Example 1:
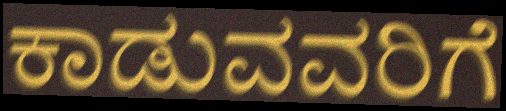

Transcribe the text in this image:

ಕಾಡುವವರಿಗೆ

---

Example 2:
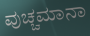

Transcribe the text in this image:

ವುಚ್ಚಮಾನಾ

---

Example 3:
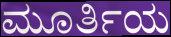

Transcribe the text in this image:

ಮೂರ್ತಿಯ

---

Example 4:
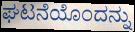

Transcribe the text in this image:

ಘಟನೆಯೊಂದನ್ನು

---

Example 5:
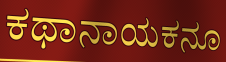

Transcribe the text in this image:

ಕಥಾನಾಯಕನೂ